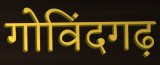
गोविंदगढ़